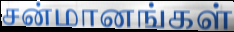
சன்மானங்கள்